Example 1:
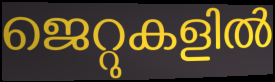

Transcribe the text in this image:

ജെറ്റുകളിൽ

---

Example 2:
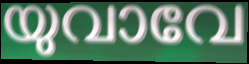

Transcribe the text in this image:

യുവാവേ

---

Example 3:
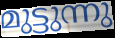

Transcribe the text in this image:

മുട്ടുന്നു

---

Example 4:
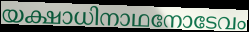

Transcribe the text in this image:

യക്ഷാധിനാഥനോടേവം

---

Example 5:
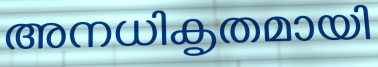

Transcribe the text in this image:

അനധികൃതമായി